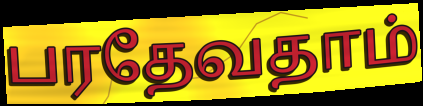
பரதேவதாம்